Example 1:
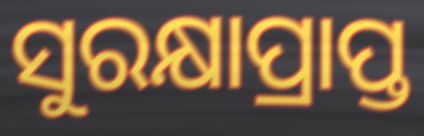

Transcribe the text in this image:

ସୁରକ୍ଷାପ୍ରାପ୍ତ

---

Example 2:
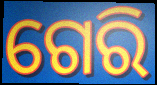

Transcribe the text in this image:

ଗେରି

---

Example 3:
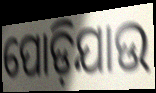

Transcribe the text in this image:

ପୋଡ଼ିଯାଉ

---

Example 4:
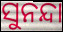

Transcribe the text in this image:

ସୁନନ୍ଦା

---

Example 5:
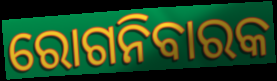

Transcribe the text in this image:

ରୋଗନିବାରକ